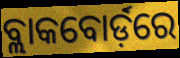
ବ୍ଲାକବୋର୍ଡ଼ରେ